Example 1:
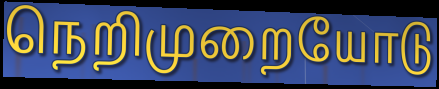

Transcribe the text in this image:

நெறிமுறையோடு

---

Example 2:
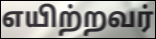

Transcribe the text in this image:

எயிற்றவர்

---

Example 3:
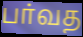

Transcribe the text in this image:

பர்வத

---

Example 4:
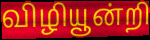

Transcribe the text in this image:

விழியூன்றி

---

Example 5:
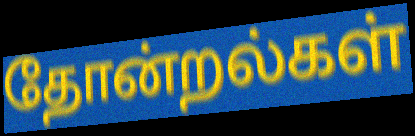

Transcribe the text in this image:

தோன்றல்கள்